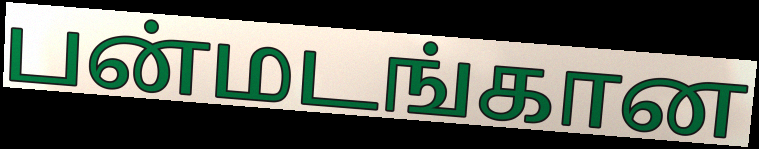
பன்மடங்கான